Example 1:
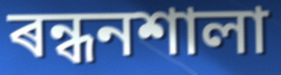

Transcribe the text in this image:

ৰন্ধনশালা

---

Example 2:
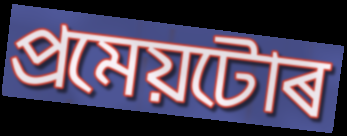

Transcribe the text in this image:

প্ৰমেয়টোৰ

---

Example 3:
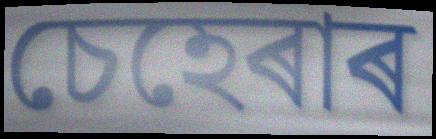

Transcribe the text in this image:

চেহেৰাৰ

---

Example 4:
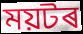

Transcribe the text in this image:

ময়টৰ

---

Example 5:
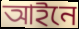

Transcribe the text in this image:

আইনে